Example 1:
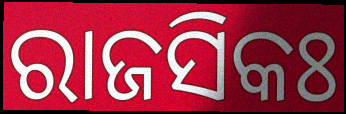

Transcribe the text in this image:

ରାଜସିକଃ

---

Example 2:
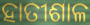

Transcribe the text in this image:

ହାତୀଶାଳ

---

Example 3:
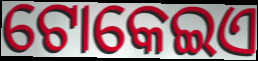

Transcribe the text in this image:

ଟୋକେଇଏ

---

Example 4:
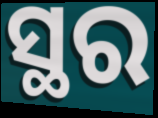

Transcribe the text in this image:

ସ୍ଥର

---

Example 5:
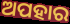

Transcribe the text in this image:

ଅପହାର